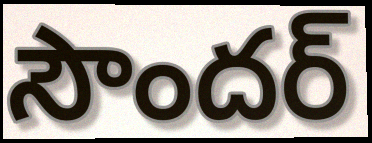
సౌందర్